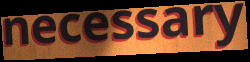
necessary